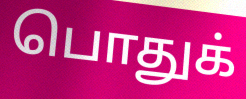
பொதுக்